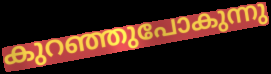
കുറഞ്ഞുപോകുന്നു